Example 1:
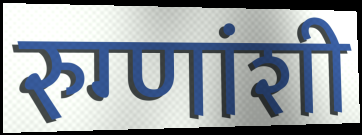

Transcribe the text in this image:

रुग्णांशी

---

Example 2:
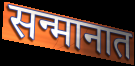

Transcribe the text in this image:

सन्मानात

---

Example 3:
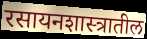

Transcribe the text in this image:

रसायनशास्त्रातील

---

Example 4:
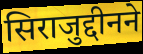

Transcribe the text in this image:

सिराजुद्दीनने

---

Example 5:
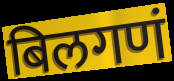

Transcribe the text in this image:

बिलगणं